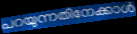
പറയുന്നതിനേക്കാൾ